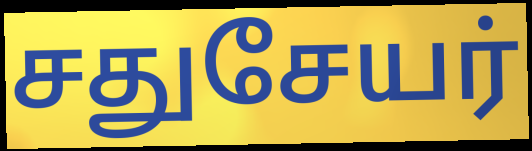
சதுசேயர்